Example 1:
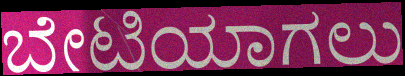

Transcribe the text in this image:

ಬೇಟಿಯಾಗಲು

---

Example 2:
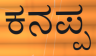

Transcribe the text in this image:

ಕನಪ್ಪ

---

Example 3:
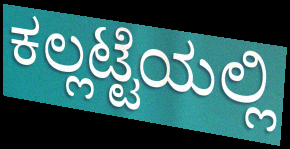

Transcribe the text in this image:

ಕಲ್ಲಟ್ಟೆಯಲ್ಲಿ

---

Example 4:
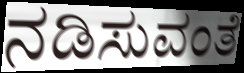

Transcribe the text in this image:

ನಡಿಸುವಂತೆ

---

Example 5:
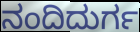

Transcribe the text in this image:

ನಂದಿದುರ್ಗ